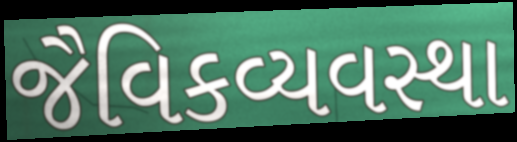
જૈવિકવ્યવસ્થા